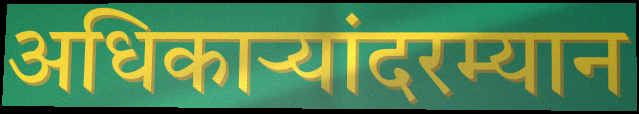
अधिकाऱ्यांदरम्यान